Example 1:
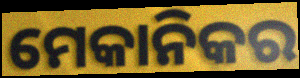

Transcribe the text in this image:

ମେକାନିକର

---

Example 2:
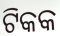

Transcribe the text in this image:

ଟିକକ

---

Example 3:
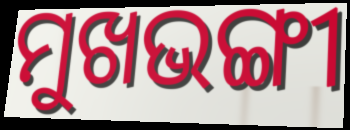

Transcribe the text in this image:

ମୁଖଭଙ୍ଗୀ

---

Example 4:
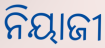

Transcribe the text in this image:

ନିୟାଜୀ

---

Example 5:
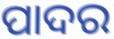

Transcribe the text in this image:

ପାଦର